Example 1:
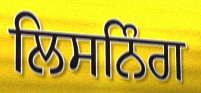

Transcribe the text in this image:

ਲਿਸਨਿੰਗ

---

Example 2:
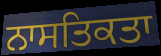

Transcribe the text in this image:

ਨਾਸਤਿਕਤਾ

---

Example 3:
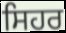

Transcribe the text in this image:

ਸਿਹਰ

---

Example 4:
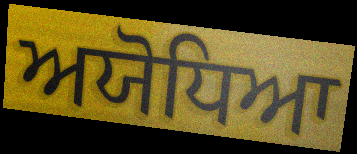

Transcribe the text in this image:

ਅਯੋਧਿਆ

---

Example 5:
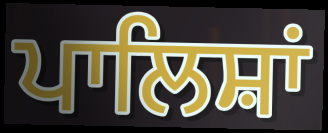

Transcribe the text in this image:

ਪਾਲਿਸ਼ਾਂ